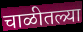
चाळीतल्या